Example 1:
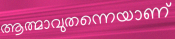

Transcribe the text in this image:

ആത്മാവുതന്നെയാണ്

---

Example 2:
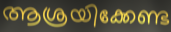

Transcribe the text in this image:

ആശ്രയിക്കേണ്ട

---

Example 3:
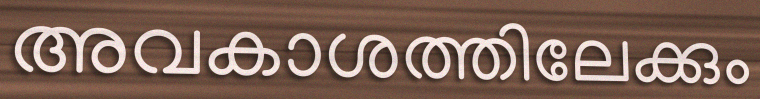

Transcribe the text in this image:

അവകാശത്തിലേക്കും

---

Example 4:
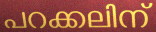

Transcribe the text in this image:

പറക്കലിന്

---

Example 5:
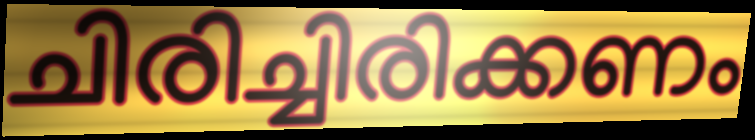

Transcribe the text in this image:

ചിരിച്ചിരിക്കണം